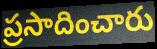
ప్రసాదించారు